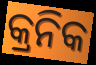
କ୍ରନିକ